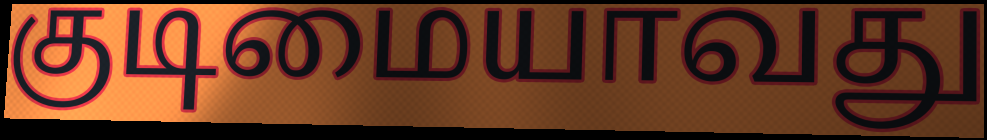
குடிமையாவது